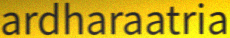
ardharaatria